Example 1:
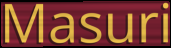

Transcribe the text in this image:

Masuri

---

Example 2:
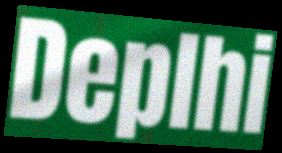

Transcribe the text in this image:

Deplhi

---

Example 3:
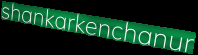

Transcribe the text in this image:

shankarkenchanur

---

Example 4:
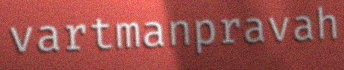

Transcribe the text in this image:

vartmanpravah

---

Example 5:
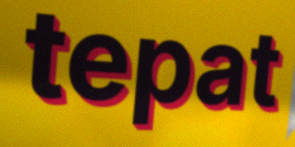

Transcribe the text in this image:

tepat